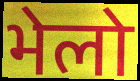
भेलो